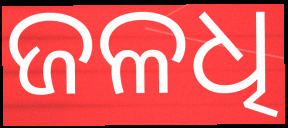
ଜଳଧି